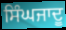
ਸਿੰਘਜਾਦੂ